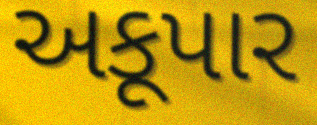
અકૂપાર